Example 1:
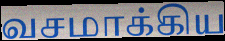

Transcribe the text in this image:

வசமாக்கிய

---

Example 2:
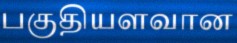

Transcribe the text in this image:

பகுதியளவான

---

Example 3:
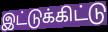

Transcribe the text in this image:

இட்டுக்கிட்டு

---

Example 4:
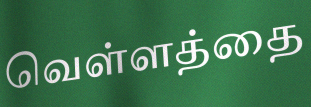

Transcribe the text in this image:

வெள்ளத்தை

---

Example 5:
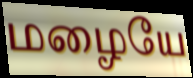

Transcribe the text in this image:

மழையே